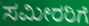
ಸಮೀರರಿಗೆ